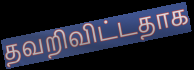
தவறிவிட்டதாக